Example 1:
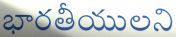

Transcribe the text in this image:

భారతీయులని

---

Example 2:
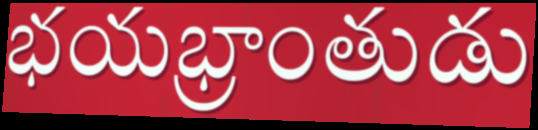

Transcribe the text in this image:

భయభ్రాంతుడు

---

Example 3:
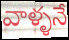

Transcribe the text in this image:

వాళ్ళనే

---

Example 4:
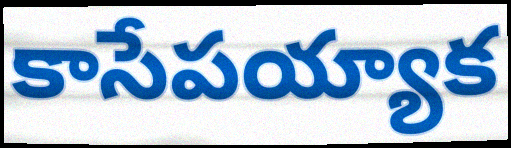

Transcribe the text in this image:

కాసేపయ్యాక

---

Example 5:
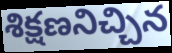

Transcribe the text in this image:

శిక్షణనిచ్చిన